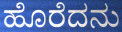
ಹೊರೆದನು